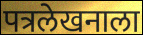
पत्रलेखनाला